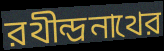
রথীন্দ্রনাথের